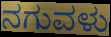
ನಗುವಳು